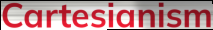
Cartesianism